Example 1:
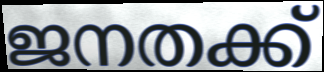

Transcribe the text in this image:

ജനതക്ക്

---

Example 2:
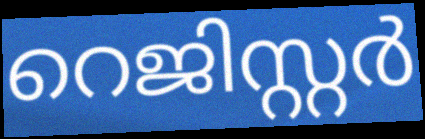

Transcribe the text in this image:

റെജിസ്റ്റർ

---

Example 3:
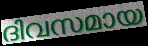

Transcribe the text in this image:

ദിവസമായ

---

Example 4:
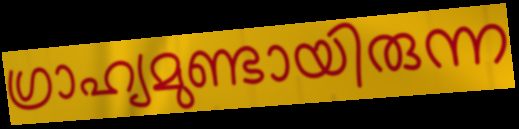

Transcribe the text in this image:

ഗ്രാഹ്യമുണ്ടായിരുന്ന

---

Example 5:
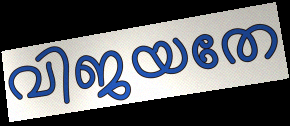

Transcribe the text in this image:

വിജയതേ